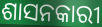
ଶାସନକାରୀ